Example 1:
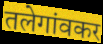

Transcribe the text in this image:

तलेगांवकर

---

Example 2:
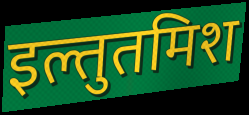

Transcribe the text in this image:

इल्तुतमिश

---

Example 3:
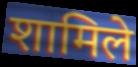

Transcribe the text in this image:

शामिले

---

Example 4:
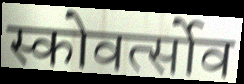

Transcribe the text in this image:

स्कोवर्त्सोव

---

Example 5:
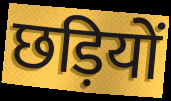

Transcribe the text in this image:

छड़ियों